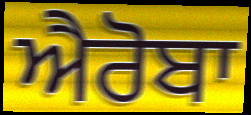
ਐਰੋਬਾ